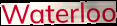
Waterloo